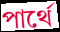
পার্থে